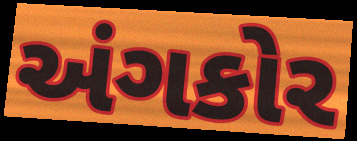
અંગકોર